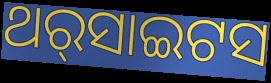
ଥର୍‌ସାଇଟସ